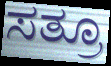
ಸತ್ರೂ